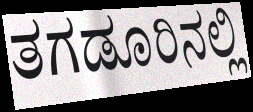
ತಗಡೂರಿನಲ್ಲಿ